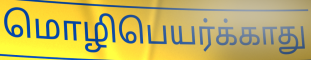
மொழிபெயர்க்காது